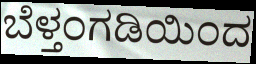
ಬೆಳ್ತಂಗಡಿಯಿಂದ